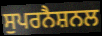
ਸੁਪਰਨੈਸ਼ਨਲ